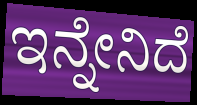
ಇನ್ನೇನಿದೆ